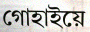
গোহাইয়ে